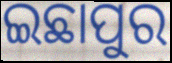
ଇଛାପୁର